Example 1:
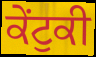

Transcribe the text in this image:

ਕੇਂਟੁਕੀ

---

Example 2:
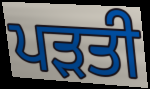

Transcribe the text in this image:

ਪੜਤੀ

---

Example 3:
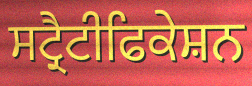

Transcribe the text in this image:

ਸਟ੍ਰੈਟੀਫਿਕੇਸ਼ਨ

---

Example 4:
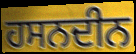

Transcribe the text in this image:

ਹਸਨਦੀਨ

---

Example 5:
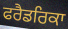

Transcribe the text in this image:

ਫਰੈਡਰਿਕਾ